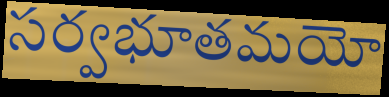
సర్వభూతమయో